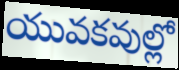
యువకవుల్లో